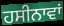
ਹਸੀਨਾਵਾਂ